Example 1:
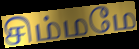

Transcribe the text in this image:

சிம்மமே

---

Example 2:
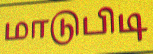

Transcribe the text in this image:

மாடுபிடி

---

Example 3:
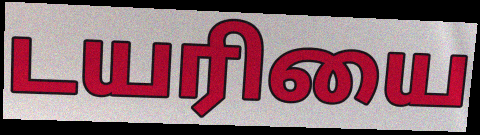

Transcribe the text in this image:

டயரியை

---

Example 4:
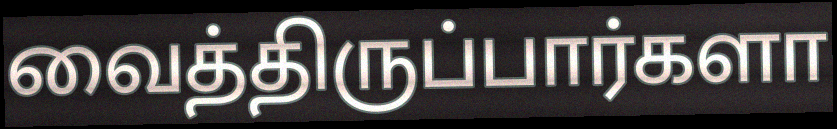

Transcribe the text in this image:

வைத்திருப்பார்களா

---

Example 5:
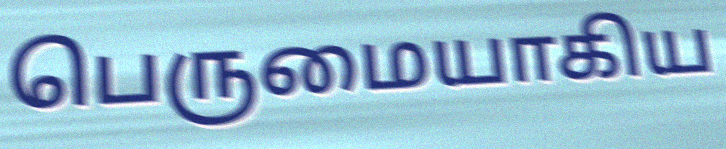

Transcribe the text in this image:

பெருமையாகிய